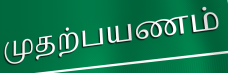
முதற்பயணம்